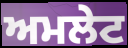
ਅਮਲੇਟ